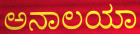
ಅನಾಲಯಾ